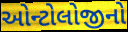
ઓન્ટોલોજીનો